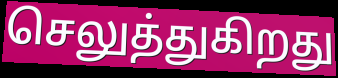
செலுத்துகிறது